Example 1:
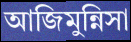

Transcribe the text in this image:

আজিমুন্নিসা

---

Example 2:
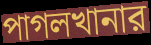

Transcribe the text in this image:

পাগলখানার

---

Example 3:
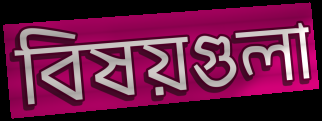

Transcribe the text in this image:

বিষয়গুলা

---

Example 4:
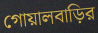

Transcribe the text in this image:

গোয়ালবাড়ির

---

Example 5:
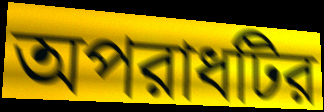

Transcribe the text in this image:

অপরাধটির